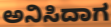
ಅನಿಸಿದಾಗ